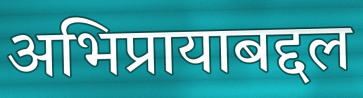
अभिप्रायाबद्दल